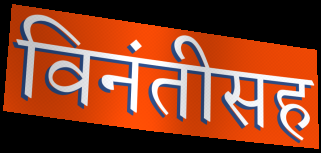
विनंतीसह